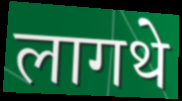
लागथे